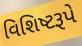
વિશિષ્ટરૂપે